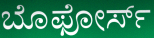
ಬೊಫೋರ್ಸ್